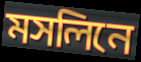
মসলিনে